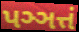
પઞ્ઞત્તં